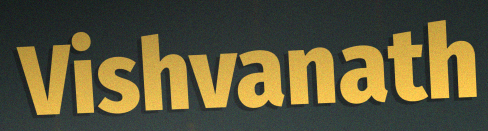
Vishvanath